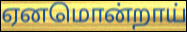
ஏனமொன்றாய்